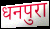
धनपुरा